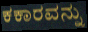
ಕಕಾರವನ್ನು